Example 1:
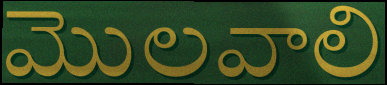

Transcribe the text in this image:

మొలవాలి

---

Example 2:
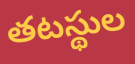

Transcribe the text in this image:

తటస్థుల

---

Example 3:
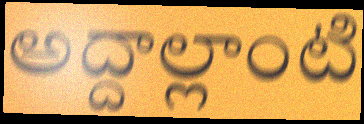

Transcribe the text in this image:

అద్దాల్లాంటి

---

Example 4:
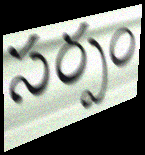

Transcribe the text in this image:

సర్పం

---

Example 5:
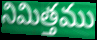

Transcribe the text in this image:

నిమిత్తము